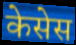
केसेस